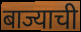
बाज्याची